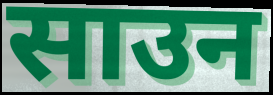
साउन